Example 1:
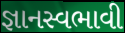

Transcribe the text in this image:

જ્ઞાનસ્વભાવી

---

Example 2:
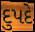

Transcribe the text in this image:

દુપદે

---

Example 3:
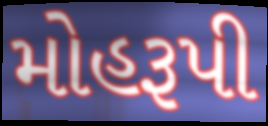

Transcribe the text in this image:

મોહરૂપી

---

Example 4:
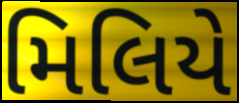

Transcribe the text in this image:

મિલિયે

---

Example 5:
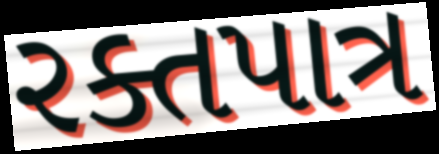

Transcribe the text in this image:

રક્તપાત્ર